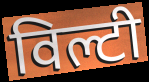
विल्टी